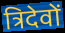
त्रिदेवों